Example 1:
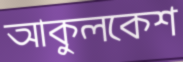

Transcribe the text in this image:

আকুলকেশ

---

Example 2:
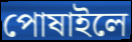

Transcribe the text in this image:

পোষাইলে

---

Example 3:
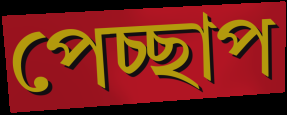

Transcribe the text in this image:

পেচ্ছাপ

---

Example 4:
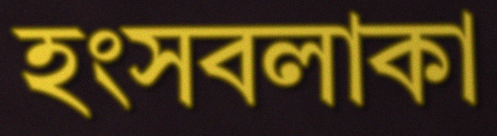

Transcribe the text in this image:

হংসবলাকা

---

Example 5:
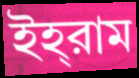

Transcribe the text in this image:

ইহ্‌রাম